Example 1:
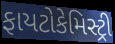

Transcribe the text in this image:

ફાયટોકેમિસ્ટ્રી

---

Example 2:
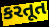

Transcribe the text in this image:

કરતૂત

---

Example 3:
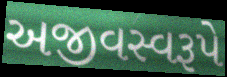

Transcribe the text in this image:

અજીવસ્વરૂપે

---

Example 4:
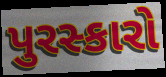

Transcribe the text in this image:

પુરસ્કારો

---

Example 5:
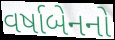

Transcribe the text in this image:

વર્ષાબેનનો